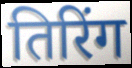
तिरिंग